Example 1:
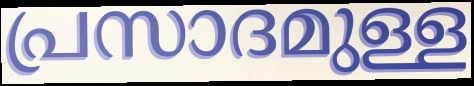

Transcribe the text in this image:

പ്രസാദമുള്ള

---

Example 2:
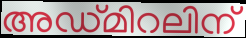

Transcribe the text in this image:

അഡ്മിറലിന്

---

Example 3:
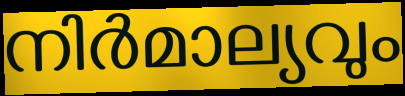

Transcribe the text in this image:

നിർമാല്യവും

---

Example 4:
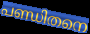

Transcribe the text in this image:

പണ്ഡിതനെ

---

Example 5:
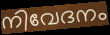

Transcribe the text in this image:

നിവേദനം